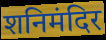
शनिमंदिर